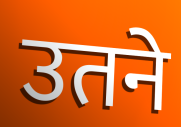
उतने